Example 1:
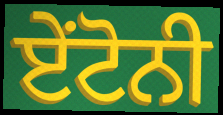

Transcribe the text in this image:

ਏਂਟੋਨੀ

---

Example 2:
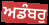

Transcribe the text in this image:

ਅਡੰਬਰੁ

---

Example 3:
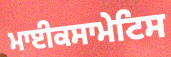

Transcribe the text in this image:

ਮਾਈਕਸਾਮੇਟਿਸ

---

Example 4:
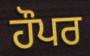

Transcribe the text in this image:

ਹੌਪਰ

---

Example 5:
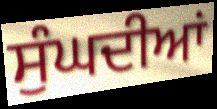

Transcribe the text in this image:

ਸੁੰਘਦੀਆਂ